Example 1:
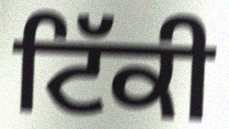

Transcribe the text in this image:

ਟਿੱਕੀ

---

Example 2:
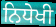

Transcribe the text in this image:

ਨਿਧੇਖੀ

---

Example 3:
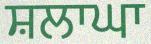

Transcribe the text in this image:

ਸ਼ਲਾਘਾ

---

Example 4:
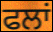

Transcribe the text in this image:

ਫਲਾਂ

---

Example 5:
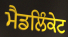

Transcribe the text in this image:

ਮੈਡਲਿੰਕੇਟ